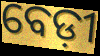
ବେଡ଼ୀ